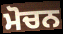
ਮੋਚਨ